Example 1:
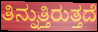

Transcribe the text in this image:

ತಿನ್ನುತ್ತಿರುತ್ತದೆ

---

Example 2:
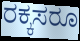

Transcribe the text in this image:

ರಕ್ಕಸರೂ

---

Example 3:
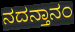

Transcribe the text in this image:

ನದನ್ತಾನಂ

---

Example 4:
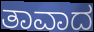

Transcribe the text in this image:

ತಾವಾದ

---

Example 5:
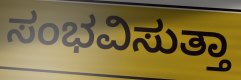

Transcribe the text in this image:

ಸಂಭವಿಸುತ್ತಾ